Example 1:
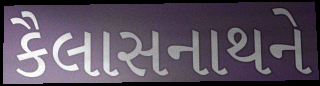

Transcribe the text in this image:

કૈલાસનાથને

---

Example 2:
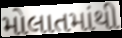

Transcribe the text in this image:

મોલાતમાંથી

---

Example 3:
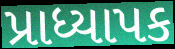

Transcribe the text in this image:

પ્રાધ્યાપક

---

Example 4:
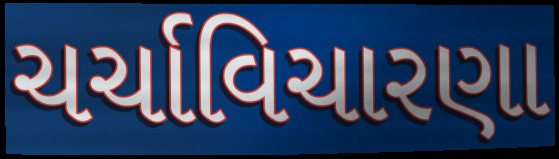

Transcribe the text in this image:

ચર્ચાવિચારણા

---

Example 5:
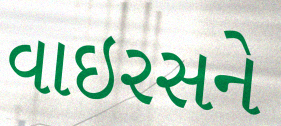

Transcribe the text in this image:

વાઇરસને